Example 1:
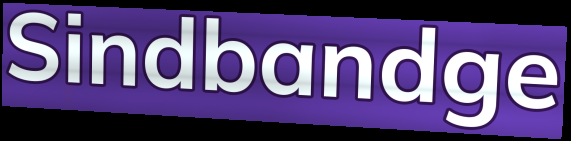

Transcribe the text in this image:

Sindbandge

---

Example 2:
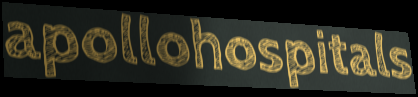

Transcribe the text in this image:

apollohospitals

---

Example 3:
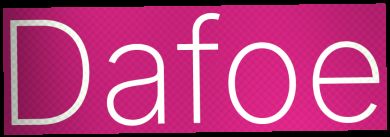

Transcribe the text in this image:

Dafoe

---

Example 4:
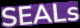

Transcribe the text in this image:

SEALs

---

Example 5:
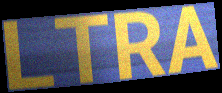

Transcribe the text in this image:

LTRA